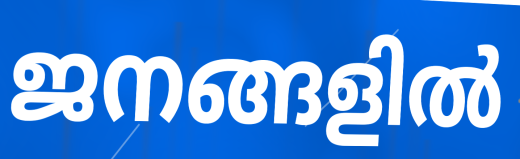
ജനങ്ങളിൽ